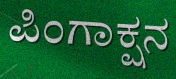
ಪಿಂಗಾಕ್ಷನ